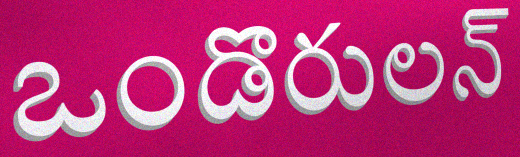
ఒండొరులన్